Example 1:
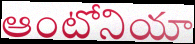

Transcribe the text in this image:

ఆంటోనియా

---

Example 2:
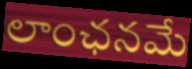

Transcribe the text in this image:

లాంఛనమే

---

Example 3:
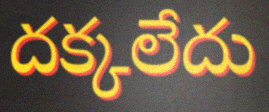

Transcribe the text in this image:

దక్కలేదు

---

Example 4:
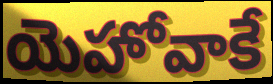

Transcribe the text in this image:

యెహోవాకే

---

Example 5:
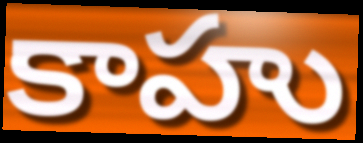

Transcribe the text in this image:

కాహు